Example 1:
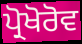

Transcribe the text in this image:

ਪ੍ਰੋਖੋਰੋਵ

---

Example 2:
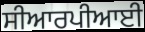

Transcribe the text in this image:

ਸੀਆਰਪੀਆਈ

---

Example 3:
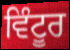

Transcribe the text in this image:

ਵਿੰਟੂਰ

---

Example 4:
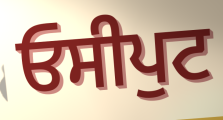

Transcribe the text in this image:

ਓਸੀਪੁਟ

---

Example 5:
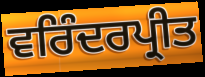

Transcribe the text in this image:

ਵਰਿੰਦਰਪ੍ਰੀਤ